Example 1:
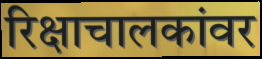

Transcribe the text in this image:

रिक्षाचालकांवर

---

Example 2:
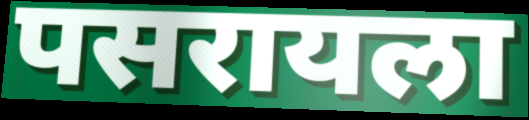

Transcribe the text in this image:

पसरायला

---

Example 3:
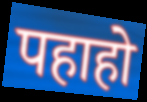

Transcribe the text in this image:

पहाहो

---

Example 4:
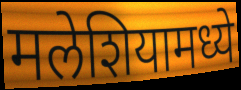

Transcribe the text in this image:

मलेशियामध्ये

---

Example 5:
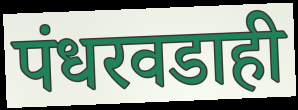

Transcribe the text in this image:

पंधरवडाही